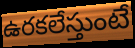
ఉరకలేస్తుంటే